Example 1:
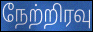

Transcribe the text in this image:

நேற்றிரவு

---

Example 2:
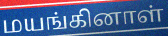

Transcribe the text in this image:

மயங்கினாள்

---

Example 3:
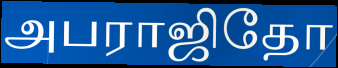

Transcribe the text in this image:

அபராஜிதோ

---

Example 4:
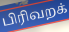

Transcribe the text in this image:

பிரிவறக்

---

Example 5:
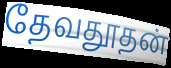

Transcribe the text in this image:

தேவதூதன்